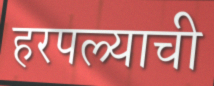
हरपल्याची